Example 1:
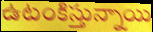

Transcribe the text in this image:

ఉటంకిస్తున్నాయి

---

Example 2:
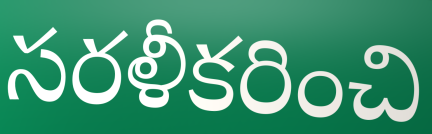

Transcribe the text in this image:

సరళీకరించి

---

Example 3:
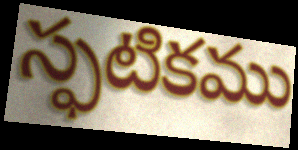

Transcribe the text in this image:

స్ఫటికము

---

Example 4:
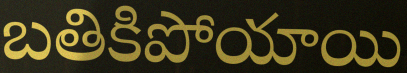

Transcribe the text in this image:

బతికిపోయాయి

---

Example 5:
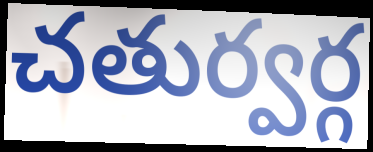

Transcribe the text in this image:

చతుర్వర్గ